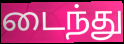
டைந்து